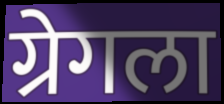
ग्रेगला